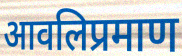
आवलिप्रमाण